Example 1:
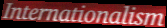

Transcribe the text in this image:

Internationalism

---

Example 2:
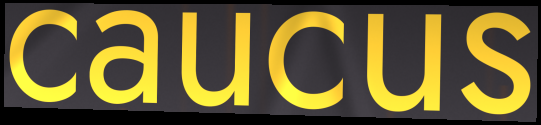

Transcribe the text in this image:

caucus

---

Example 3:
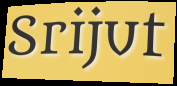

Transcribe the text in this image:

Srijut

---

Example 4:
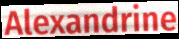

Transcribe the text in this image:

Alexandrine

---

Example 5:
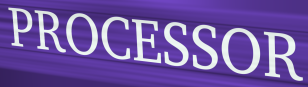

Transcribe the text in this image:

PROCESSOR